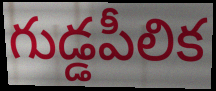
గుడ్డపీలిక